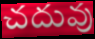
చదువు